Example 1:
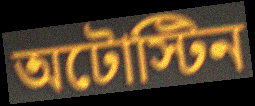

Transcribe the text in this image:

অটোস্টিন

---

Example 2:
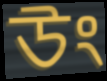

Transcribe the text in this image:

উং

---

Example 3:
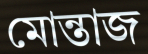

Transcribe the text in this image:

মোন্তাজ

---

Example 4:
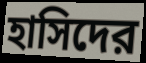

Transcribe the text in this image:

হাসিদের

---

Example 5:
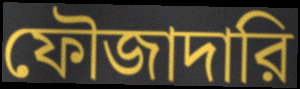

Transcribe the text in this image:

ফৌজাদারি